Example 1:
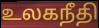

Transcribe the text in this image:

உலகநீதி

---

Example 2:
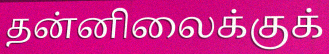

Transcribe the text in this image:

தன்னிலைக்குக்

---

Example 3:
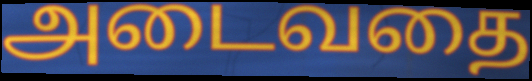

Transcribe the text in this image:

அடைவதை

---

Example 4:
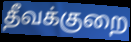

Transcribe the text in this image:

தீவக்குறை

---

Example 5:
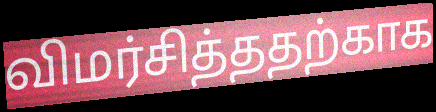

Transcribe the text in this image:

விமர்சித்ததற்காக